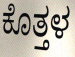
ಕೊತ್ತಳ